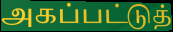
அகப்பட்டுத்